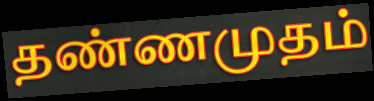
தண்ணமுதம்